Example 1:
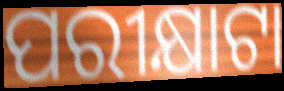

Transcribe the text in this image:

ପରୀକ୍ଷାଟା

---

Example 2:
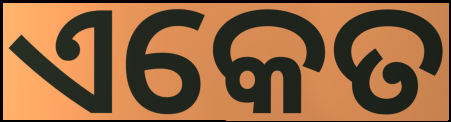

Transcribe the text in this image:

ଏକେତ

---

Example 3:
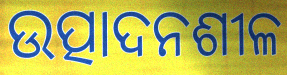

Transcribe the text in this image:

ଉତ୍ପାଦନଶୀଳ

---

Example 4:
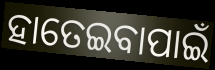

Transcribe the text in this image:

ହାତେଇବାପାଇଁ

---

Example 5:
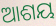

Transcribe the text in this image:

ଆଶୟ